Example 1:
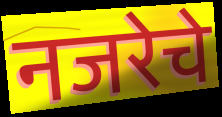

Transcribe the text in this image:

नजरेचे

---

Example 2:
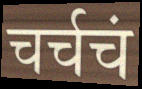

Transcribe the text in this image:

चर्चचं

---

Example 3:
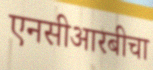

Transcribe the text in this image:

एनसीआरबीचा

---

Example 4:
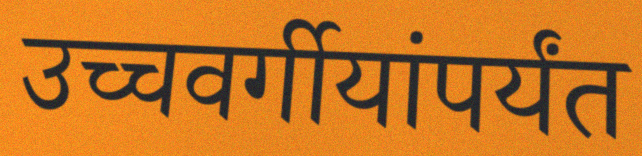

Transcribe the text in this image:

उच्चवर्गीयांपर्यंत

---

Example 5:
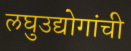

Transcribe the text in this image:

लघुउद्योगांची